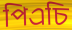
পিএচি